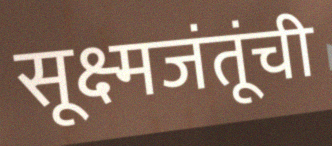
सूक्ष्मजंतूंची